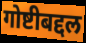
गोष्टीबद्दल